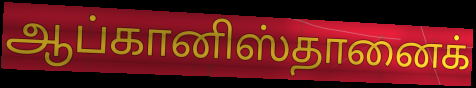
ஆப்கானிஸ்தானைக்